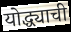
योद्ध्याची